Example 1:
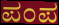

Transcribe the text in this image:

ಪಂಪ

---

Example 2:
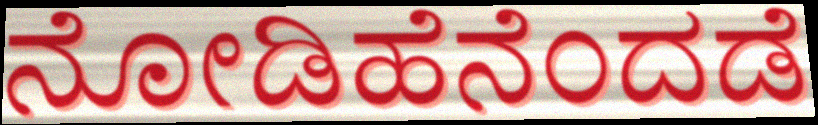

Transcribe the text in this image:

ನೋಡಿಹೆನೆಂದಡೆ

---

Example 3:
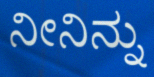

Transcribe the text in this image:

ನೀನಿನ್ನು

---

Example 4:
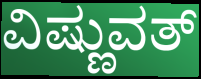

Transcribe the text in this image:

ವಿಷ್ಣುವತ್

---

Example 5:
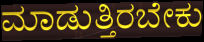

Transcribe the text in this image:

ಮಾಡುತ್ತಿರಬೇಕು